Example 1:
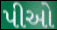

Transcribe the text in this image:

પીઓ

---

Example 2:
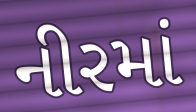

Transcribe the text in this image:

નીરમાં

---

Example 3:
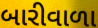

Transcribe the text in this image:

બારીવાળા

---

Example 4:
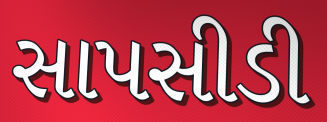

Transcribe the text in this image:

સાપસીડી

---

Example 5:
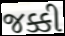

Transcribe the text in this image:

જક્કી